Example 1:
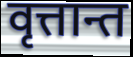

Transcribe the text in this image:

वृत्तान्त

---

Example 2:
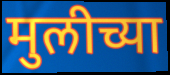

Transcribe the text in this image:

मुलीच्या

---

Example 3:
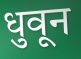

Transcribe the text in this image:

धुवून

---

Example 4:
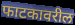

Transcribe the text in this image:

फाटकावरील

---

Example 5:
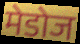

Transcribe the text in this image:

मेडोज